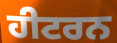
ਹੀਟਰਨ